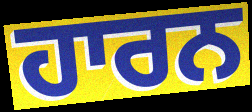
ਹਾਰਨ